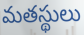
మతస్థులు